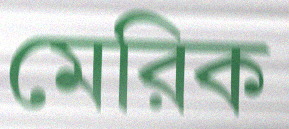
মেরিক